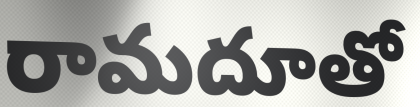
రామదూతో